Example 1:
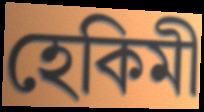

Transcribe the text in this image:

হেকিমী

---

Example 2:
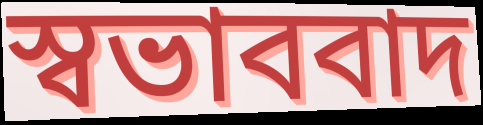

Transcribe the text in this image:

স্বভাববাদ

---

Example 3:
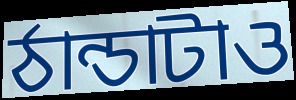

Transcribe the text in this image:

ঠান্ডাটাও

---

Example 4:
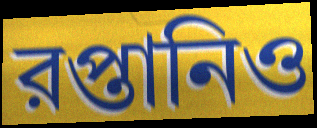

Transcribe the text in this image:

রপ্তানিও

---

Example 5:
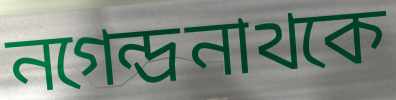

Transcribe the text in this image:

নগেন্দ্রনাথকে